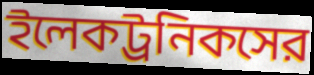
ইলেকট্রনিকসের